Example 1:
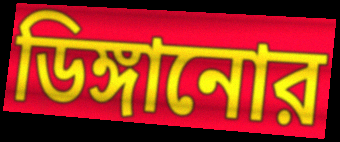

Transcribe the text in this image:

ডিঙ্গানোর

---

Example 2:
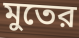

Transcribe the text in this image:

মুতের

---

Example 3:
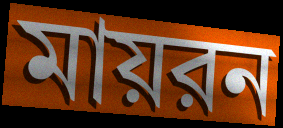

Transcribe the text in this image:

মায়রন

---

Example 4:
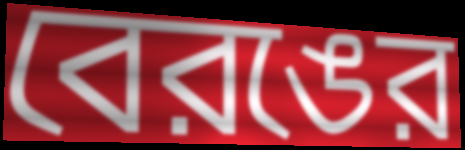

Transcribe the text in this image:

বেরঙের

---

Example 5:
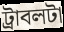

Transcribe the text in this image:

ট্রাবলটা